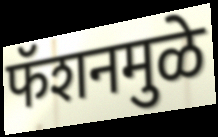
फॅशनमुळे